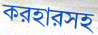
করহারসহ